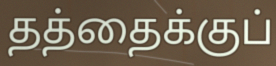
தத்தைக்குப்